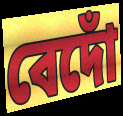
বেদোঁ